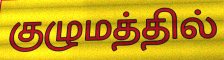
குழுமத்தில்